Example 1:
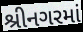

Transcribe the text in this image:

શ્રીનગરમાં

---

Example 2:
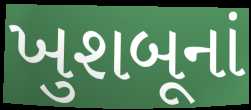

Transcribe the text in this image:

ખુશબૂનાં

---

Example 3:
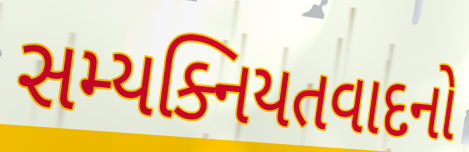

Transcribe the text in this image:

સમ્યક્નિયતવાદનો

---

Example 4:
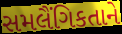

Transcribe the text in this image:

સમલૈંગિકતાને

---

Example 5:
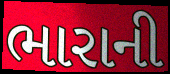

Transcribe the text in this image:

ભારાની